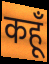
कहूँ